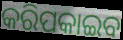
କରିପକାଇବ